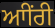
ਆੀਂਰੀ